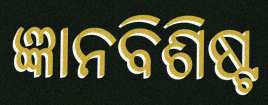
ଜ୍ଞାନବିଶିଷ୍ଟ